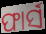
ଫାର୍ସ